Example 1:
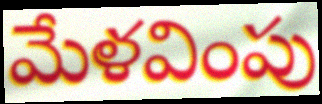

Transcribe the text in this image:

మేళవింపు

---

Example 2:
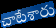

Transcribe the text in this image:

చాటేశారు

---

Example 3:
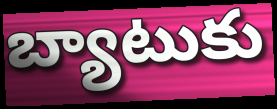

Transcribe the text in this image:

బ్యాటుకు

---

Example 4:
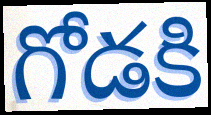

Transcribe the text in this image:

గోడకి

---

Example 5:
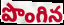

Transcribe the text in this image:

పొంగిన